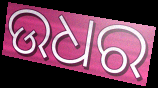
ଉଧର